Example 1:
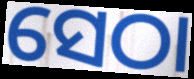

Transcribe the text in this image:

ସେଠା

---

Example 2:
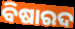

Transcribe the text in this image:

ବିଷାରଦ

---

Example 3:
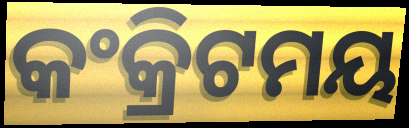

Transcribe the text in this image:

କଂକ୍ରିଟମୟ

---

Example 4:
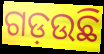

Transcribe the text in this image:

ଗଡ଼ଉଛି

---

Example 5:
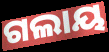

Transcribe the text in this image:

ଗଲାୟ